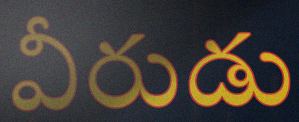
వీరుడు